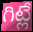
గిట్లే